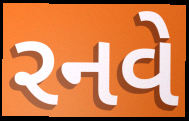
રનવે